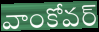
వాంకోవర్